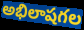
అభిలాషగల